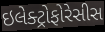
ઇલેક્ટ્રોફોરેસીસ